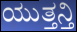
ಯುತ್ತನ್ತಿ